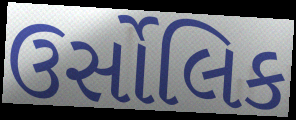
ઉર્સોલિક